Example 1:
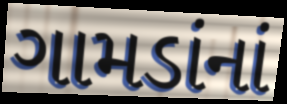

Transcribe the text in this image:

ગામડાંનાં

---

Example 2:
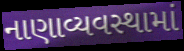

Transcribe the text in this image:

નાણાવ્યવસ્થામાં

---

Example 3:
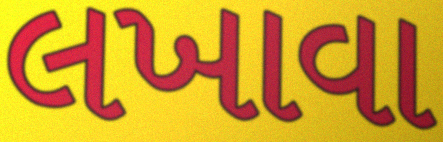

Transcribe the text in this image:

લખાવા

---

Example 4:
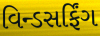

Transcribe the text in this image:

વિન્ડસર્ફિંગ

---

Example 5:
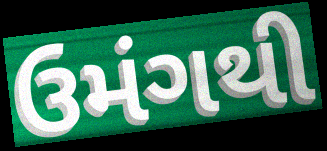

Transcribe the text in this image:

ઉમંગથી